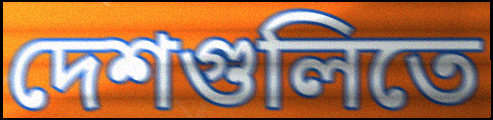
দেশগুলিতে